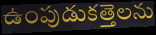
ఉంపుడుకత్తెలను